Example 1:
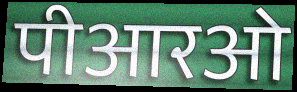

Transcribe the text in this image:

पीआरओ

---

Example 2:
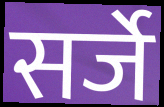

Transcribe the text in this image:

सर्जे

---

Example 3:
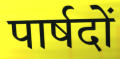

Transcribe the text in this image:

पार्षदों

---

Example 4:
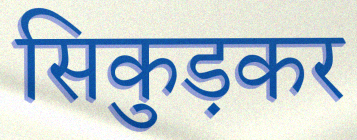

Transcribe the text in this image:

सिकुड़कर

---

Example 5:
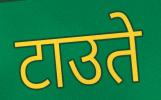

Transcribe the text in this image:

टाउते